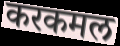
करकमल